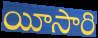
యీసారి